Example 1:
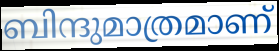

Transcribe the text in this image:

ബിന്ദുമാത്രമാണ്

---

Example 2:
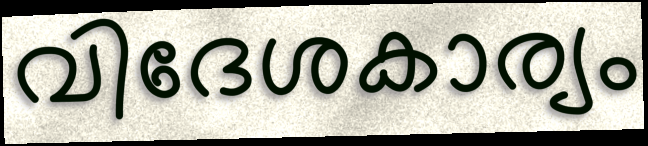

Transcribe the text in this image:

വിദേശകാര്യം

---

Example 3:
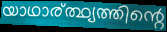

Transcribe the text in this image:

യാഥാര്ത്ഥ്യത്തിന്റെ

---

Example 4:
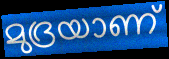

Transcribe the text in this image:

മുദ്രയാണ്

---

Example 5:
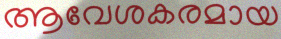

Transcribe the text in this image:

ആവേശകരമായ